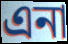
এনা